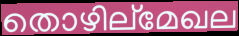
തൊഴില്മേഖല